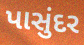
પાસુંદર